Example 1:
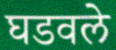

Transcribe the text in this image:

घडवले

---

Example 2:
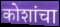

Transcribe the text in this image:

कोशांचा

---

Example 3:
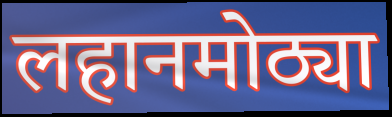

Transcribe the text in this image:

लहानमोठ्या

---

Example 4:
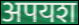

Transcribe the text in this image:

अपयश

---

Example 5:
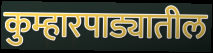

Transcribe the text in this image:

कुम्हारपाड्यातील